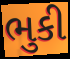
ભુકી